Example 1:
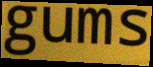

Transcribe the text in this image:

gums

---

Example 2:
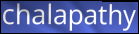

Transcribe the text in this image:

chalapathy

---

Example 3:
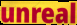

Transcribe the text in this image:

unreal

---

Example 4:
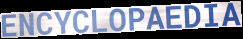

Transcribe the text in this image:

ENCYCLOPAEDIA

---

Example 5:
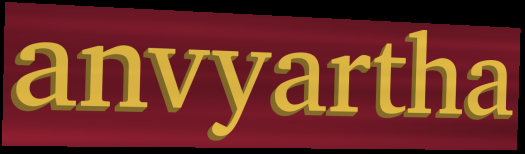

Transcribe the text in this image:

anvyartha